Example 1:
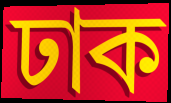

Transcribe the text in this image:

ঢাক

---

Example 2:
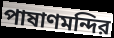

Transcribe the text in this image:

পাষাণমন্দির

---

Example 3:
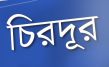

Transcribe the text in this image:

চিরদূর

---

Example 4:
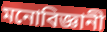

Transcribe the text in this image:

মনোবিজ্ঞানী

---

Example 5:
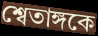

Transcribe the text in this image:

শ্বেতাঙ্গকে